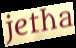
jetha